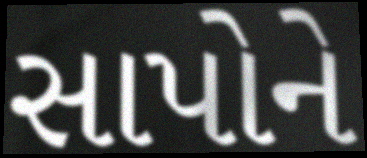
સાપોને